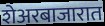
शेअरबाजारात